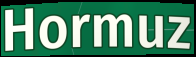
Hormuz